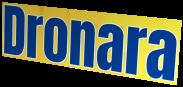
Dronara